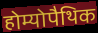
होम्‍योपैथिक